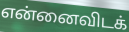
என்னைவிடக்